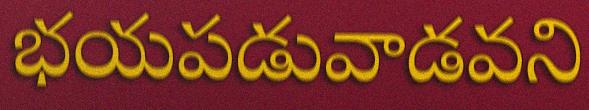
భయపడువాడవని